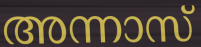
അന്നാസ്